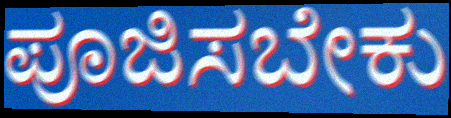
ಪೂಜಿಸಬೇಕು